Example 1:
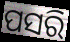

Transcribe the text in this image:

ପସରି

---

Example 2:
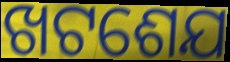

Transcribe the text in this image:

ଖଟଶେଯ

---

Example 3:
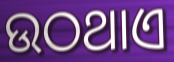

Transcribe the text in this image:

ଉଠଥାଏ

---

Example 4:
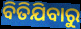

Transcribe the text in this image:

ବିତିଯିବାରୁ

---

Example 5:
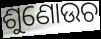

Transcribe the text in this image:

ଶୁଣୋଉଚ